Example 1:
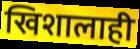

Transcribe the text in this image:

खिशालाही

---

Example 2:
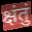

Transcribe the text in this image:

क्षंतुं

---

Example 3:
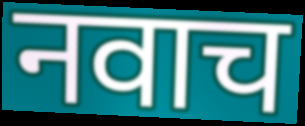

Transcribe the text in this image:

नवाच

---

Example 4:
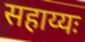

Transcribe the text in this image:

सहाय्यः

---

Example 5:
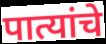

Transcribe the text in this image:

पात्यांचे